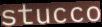
stucco